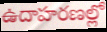
ఉదాహరణల్లో